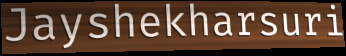
Jayshekharsuri